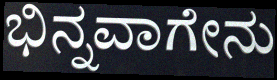
ಭಿನ್ನವಾಗೇನು